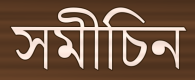
সমীচিন